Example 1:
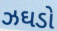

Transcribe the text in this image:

ઝઘડો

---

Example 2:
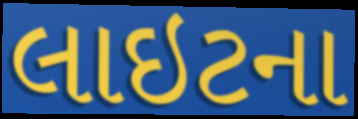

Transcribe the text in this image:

લાઇટના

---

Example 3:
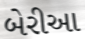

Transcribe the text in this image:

બેરીઆ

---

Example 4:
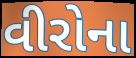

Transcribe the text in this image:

વીરોના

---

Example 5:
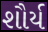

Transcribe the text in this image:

શૌર્ય